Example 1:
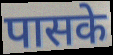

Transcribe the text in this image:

पासके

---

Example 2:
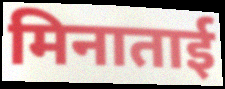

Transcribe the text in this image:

मिनाताई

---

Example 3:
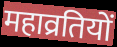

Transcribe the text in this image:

महाव्रतियों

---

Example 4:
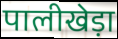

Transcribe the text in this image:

पालीखेड़ा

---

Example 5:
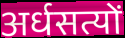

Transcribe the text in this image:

अर्धसत्यों